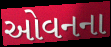
ઓવનના